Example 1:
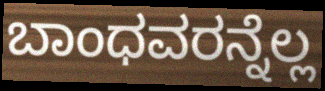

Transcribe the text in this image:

ಬಾಂಧವರನ್ನೆಲ್ಲ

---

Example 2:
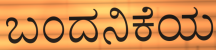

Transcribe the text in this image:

ಬಂದನಿಕೆಯ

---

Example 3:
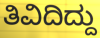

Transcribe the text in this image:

ತಿವಿದಿದ್ದು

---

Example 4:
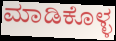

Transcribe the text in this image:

ಮಾಡಿಕೊಳ್ಳ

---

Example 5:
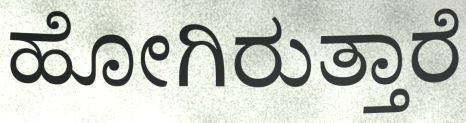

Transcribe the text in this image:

ಹೋಗಿರುತ್ತಾರೆ